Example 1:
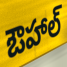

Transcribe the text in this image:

ఔహాల్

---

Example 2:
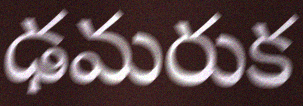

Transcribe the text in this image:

ఢమరుక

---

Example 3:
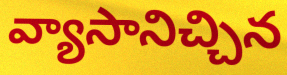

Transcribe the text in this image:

వ్యాసానిచ్చిన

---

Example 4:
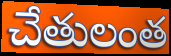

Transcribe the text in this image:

చేతులంత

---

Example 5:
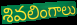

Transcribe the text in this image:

శివలింగాలు